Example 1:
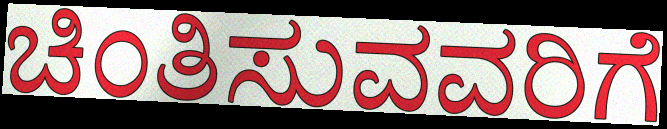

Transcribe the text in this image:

ಚಿಂತಿಸುವವರಿಗೆ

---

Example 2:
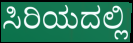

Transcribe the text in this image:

ಸಿರಿಯದಲ್ಲಿ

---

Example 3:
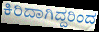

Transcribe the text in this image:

ಕಿರಿದಾಗಿದ್ದರಿಂದ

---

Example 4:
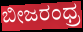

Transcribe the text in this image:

ಬೀಜರಂಧ್ರ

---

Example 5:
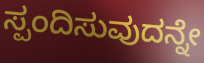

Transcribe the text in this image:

ಸ್ಪಂದಿಸುವುದನ್ನೇ